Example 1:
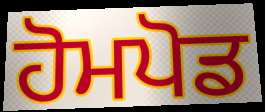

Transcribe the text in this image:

ਹੋਮਪੋਡ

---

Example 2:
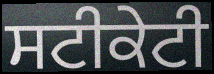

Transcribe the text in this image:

ਸਟੀਕੇਟੀ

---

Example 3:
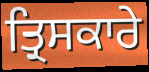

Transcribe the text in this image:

ਤ੍ਰਿਸਕਾਰੇ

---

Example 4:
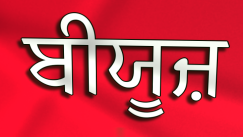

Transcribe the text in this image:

ਬੀਯੂਜ਼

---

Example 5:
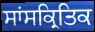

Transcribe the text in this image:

ਸਾਂਸਕ੍ਰਿਤਿਕ